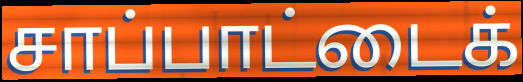
சாப்பாட்டைக்